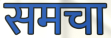
समचा